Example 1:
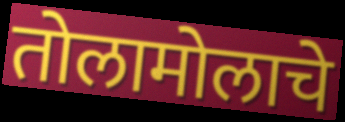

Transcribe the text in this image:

तोलामोलाचे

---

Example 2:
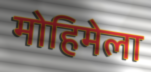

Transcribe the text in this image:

मोहिमेला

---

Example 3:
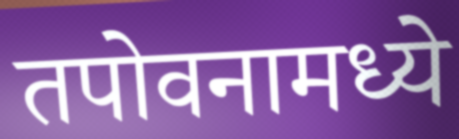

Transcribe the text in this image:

तपोवनामध्ये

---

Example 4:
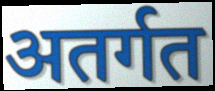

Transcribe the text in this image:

अतर्गत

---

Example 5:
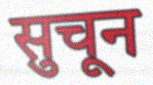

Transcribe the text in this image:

सुचून